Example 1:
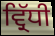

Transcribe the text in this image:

ਵ੍ਰਿੱਧੀ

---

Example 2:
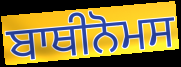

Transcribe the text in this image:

ਬਾਥੀਨੋਮਸ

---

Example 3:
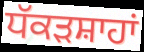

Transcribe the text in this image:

ਧੱਕੜਸ਼ਾਹਾਂ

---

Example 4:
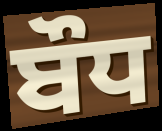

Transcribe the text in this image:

ਬੌਧ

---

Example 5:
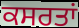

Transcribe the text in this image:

ਕਸਰਤਾਂ